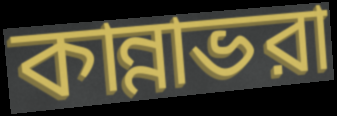
কান্নাভরা